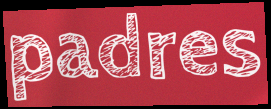
padres